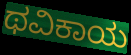
ಥವಿಕಾಯ